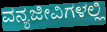
ವನ್ಯಜೀವಿಗಳಲ್ಲಿ